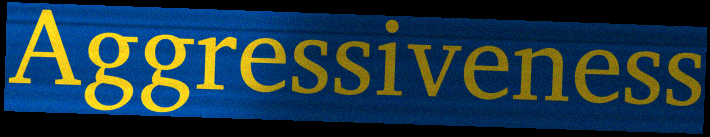
Aggressiveness